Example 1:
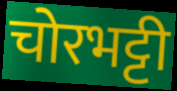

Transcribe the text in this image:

चोरभट्टी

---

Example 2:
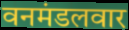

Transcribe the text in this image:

वनमंडलवार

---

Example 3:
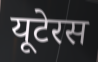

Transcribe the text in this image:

यूटेरस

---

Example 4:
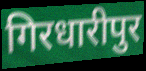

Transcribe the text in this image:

गिरधारीपुर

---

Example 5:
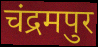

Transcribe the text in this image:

चंद्रमपुर